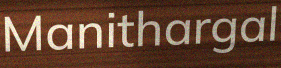
Manithargal